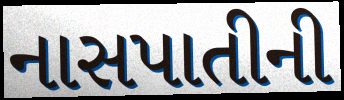
નાસપાતીની